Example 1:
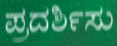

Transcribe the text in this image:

ಪ್ರದರ್ಶಿಸು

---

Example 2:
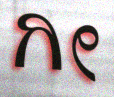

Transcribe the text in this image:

ಗೀ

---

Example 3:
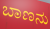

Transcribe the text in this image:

ಬಾಣನು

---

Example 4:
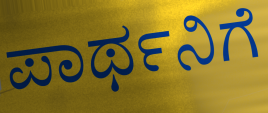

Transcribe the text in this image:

ಪಾರ್ಥನಿಗೆ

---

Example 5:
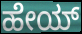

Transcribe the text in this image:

ಹೇಯ್